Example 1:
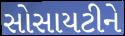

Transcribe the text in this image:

સોસાયટીને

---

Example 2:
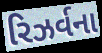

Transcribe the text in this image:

રિઝર્વના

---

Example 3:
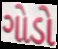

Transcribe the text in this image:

ગોડો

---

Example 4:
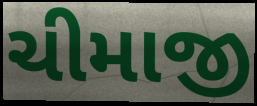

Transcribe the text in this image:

ચીમાજી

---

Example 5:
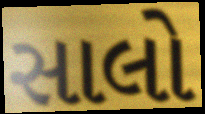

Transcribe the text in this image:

સાલો